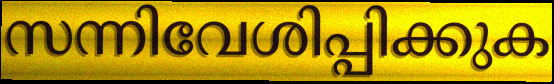
സന്നിവേശിപ്പിക്കുക